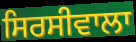
ਸਿਰਸੀਵਾਲਾ